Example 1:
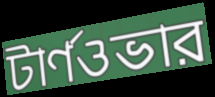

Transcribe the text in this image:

টার্ণওভার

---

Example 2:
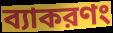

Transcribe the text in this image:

ব্যাকরণং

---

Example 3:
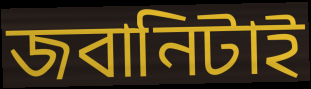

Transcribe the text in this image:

জবানিটাই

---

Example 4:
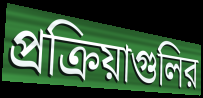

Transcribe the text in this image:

প্রক্রিয়াগুলির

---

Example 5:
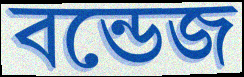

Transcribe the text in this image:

বন্ডেজ